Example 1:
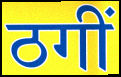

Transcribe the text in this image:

ठगीं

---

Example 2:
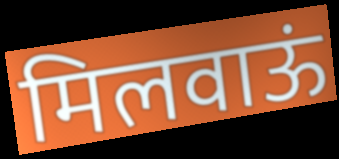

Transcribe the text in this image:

मिलवाऊं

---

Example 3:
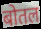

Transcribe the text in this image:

बोतल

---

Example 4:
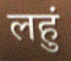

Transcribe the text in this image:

लहुं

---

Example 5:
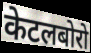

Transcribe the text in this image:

केटलबोरो